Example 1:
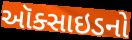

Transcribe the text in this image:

ઑક્સાઇડનો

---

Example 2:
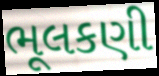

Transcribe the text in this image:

ભૂલકણી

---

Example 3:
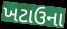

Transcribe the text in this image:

ખટાઉના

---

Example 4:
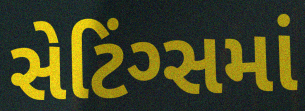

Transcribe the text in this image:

સેટિંગ્સમાં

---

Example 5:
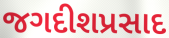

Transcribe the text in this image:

જગદીશપ્રસાદ